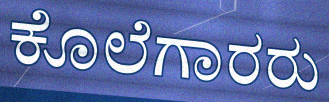
ಕೊಲೆಗಾರರು